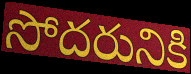
సోదరునికి